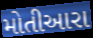
મોતીઆરા